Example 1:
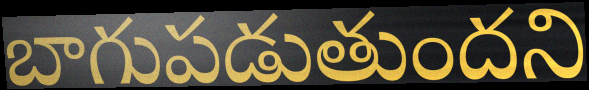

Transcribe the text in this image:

బాగుపడుతుందని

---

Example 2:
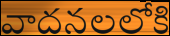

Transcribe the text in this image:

వాదనలలోకి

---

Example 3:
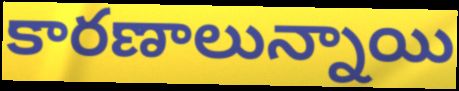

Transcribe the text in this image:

కారణాలున్నాయి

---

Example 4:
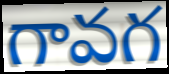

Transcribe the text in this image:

గావగ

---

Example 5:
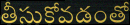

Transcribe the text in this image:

తీసుకోవడంతో